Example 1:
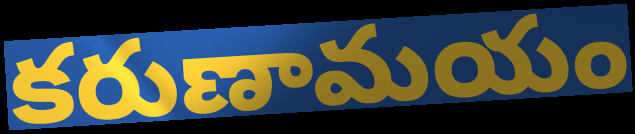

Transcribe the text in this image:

కరుణామయం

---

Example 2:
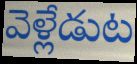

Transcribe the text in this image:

వెళ్లేడుట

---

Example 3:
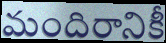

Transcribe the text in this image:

మందిరానికీ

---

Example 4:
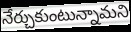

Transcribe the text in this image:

నేర్చుకుంటున్నామని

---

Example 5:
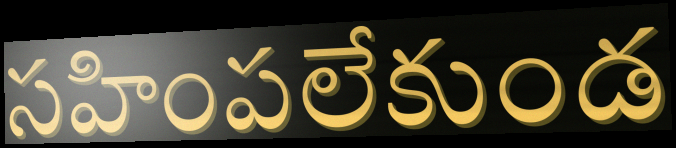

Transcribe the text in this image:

సహింపలేకుండ